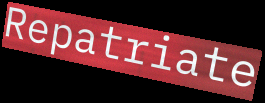
Repatriate